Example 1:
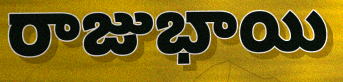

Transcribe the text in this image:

రాజుభాయి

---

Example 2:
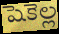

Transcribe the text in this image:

షెకెల్ల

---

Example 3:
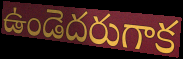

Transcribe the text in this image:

ఉండెదరుగాక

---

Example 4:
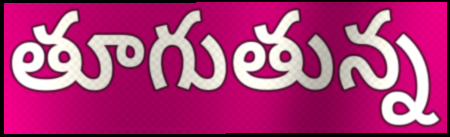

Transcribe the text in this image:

తూగుతున్న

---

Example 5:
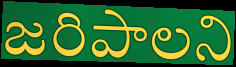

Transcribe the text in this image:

జరిపాలని